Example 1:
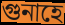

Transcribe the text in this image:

গুনাহে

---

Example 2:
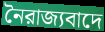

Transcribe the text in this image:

নৈরাজ্যবাদে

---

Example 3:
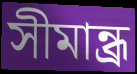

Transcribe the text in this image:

সীমান্ধ্র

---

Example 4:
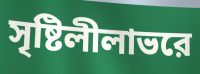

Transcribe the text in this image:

সৃষ্টিলীলাভরে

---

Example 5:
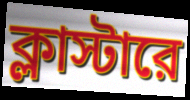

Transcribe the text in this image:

ক্লাস্টারে